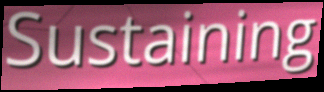
Sustaining